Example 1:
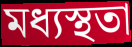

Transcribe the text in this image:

মধ্যস্থতা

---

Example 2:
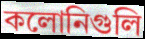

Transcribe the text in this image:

কলোনিগুলি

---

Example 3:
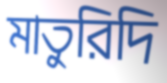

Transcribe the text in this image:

মাতুরিদি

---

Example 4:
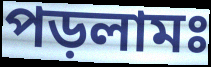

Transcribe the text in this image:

পড়লামঃ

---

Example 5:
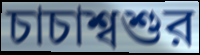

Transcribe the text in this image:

চাচাশ্বশুর